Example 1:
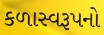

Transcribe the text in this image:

કળાસ્વરૂપનો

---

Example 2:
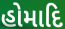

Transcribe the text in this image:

હોમાદિ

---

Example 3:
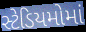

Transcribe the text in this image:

સ્ટેડિયમોમાં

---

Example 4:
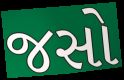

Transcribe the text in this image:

જસો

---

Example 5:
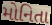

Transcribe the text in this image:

મોનિતા